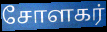
சோளகர்